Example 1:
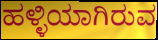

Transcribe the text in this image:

ಹಳ್ಳಿಯಾಗಿರುವ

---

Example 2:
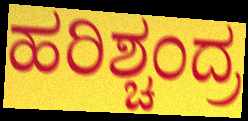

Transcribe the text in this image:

ಹರಿಶ್ಚಂದ್ರ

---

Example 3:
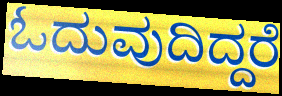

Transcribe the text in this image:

ಓದುವುದಿದ್ದರೆ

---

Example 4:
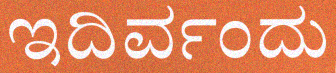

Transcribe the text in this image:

ಇದಿರ್ವಂದು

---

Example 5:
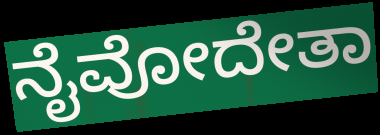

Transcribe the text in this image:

ನೈವೋದೇತಾ